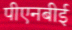
पीएनबीई